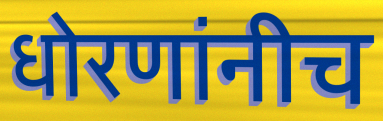
धोरणांनीच